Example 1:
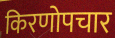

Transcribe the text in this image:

किरणोपचार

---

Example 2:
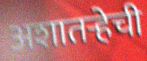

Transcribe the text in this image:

अशातऱ्हेची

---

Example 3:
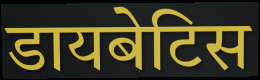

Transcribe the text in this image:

डायबेटिस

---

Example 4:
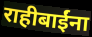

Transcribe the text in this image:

राहीबाईंना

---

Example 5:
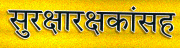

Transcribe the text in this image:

सुरक्षारक्षकांसह